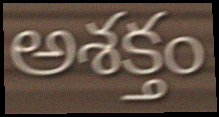
అశక్తం